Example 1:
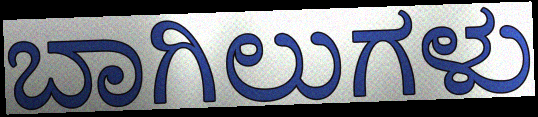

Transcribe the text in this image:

ಬಾಗಿಲುಗಳು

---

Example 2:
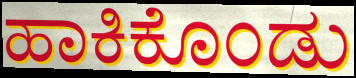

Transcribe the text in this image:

ಹಾಕಿಕೊಂಡು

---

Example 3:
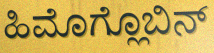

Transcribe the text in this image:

ಹಿಮೊಗ್ಲೊಬಿನ್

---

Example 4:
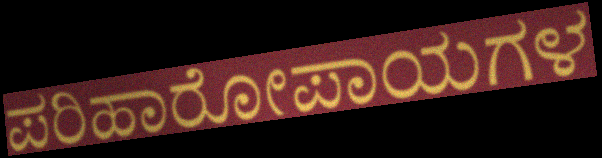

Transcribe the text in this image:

ಪರಿಹಾರೋಪಾಯಗಳ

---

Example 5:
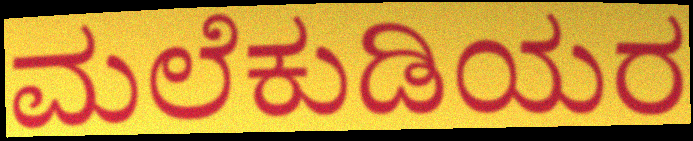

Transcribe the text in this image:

ಮಲೆಕುಡಿಯರ